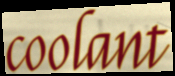
coolant